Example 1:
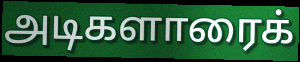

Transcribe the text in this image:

அடிகளாரைக்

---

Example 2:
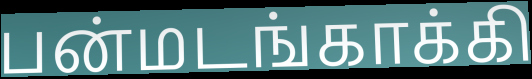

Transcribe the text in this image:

பன்மடங்காக்கி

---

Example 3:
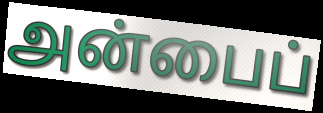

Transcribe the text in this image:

அன்பைப்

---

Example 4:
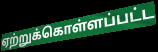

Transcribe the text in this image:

ஏற்றுக்கொள்ளப்பட்ட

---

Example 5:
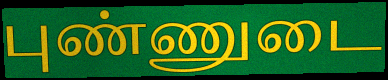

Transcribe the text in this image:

புண்ணுடை